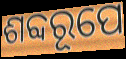
ଶବ୍ଦରୂପେ